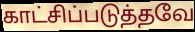
காட்சிப்படுத்தவே